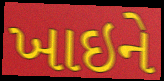
ખાઇને